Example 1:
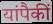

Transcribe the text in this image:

यांपैकीं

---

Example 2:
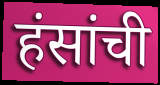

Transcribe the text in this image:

हंसांची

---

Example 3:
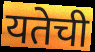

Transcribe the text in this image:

यतेची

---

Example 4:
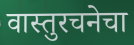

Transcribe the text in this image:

वास्तुरचनेचा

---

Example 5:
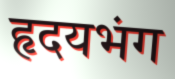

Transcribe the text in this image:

हृदयभंग